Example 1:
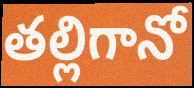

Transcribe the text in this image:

తల్లిగానో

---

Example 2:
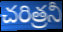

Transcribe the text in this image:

చరిత్రనీ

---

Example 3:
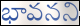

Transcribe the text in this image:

భావనని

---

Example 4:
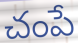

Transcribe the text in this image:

చంపే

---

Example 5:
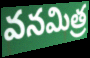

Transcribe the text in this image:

వనమిత్ర